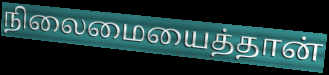
நிலைமையைத்தான்